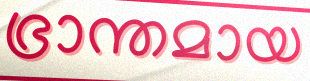
ഭ്രാന്തമായ